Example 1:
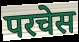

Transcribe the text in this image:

परचेस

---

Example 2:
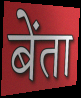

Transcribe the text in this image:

बेंता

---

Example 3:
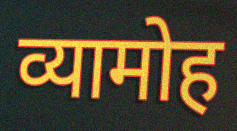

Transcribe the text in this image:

व्यामोह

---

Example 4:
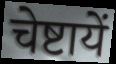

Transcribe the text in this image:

चेष्टायें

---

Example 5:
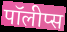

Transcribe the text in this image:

पॉलीप्स